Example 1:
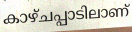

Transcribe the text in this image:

കാഴ്ചപ്പാടിലാണ്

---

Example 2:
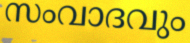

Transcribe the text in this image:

സംവാദവും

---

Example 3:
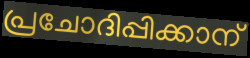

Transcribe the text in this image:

പ്രചോദിപ്പിക്കാന്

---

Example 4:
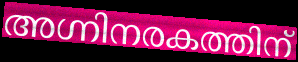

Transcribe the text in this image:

അഗ്നിനരകത്തിന്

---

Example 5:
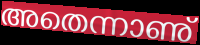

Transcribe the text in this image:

അതെന്നാണു്